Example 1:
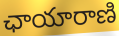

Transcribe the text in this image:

ఛాయారాణి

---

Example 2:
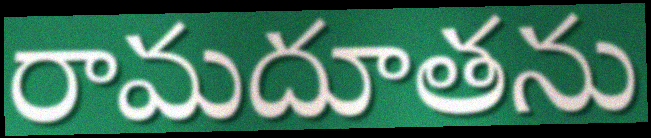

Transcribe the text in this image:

రామదూతను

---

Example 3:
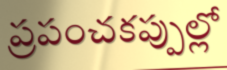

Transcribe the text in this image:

ప్రపంచకప్పుల్లో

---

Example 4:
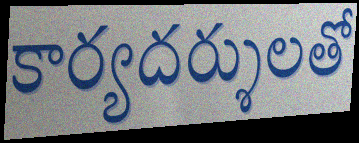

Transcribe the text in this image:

కార్యదర్శులతో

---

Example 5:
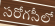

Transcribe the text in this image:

సరోగసీలో